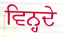
ਵਿਨ੍ਹਦੇ